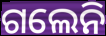
ଗଲେନି